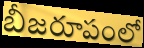
బీజరూపంలో